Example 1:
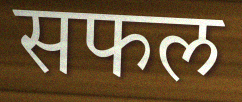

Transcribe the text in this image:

सफल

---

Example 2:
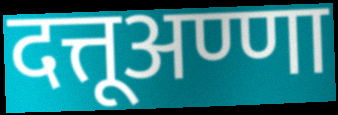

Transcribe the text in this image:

दत्तूअण्णा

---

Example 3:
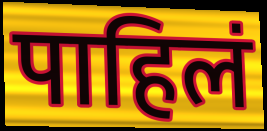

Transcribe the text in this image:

पाहिलं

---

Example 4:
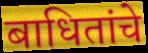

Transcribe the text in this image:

बाधितांचे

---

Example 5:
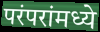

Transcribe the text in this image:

परंपरांमध्ये